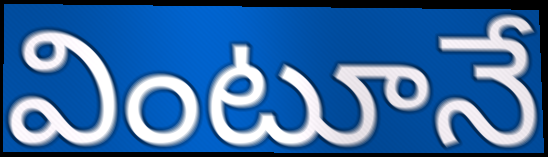
వింటూనే